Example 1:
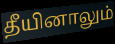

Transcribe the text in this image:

தீயினாலும்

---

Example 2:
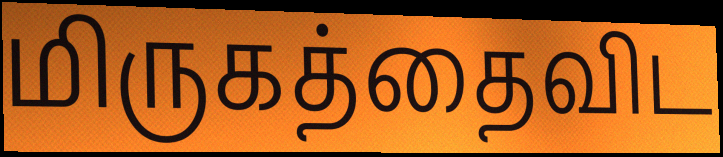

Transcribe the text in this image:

மிருகத்தைவிட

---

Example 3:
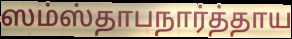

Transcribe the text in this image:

ஸம்ஸ்தாபநார்த்தாய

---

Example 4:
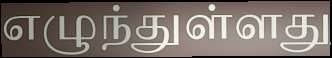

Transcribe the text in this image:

எழுந்துள்ளது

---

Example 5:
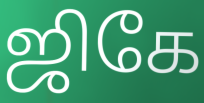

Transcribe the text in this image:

ஜிகே